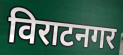
विराटनगर